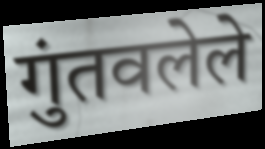
गुंतवलेले